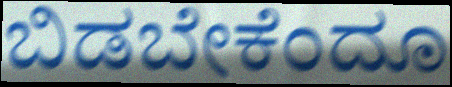
ಬಿಡಬೇಕೆಂದೂ